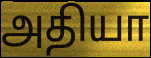
அதியா